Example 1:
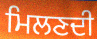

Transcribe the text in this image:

ਮਿਲਣਦੀ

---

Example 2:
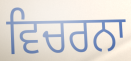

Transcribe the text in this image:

ਵਿਚਰਨਾ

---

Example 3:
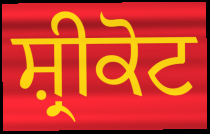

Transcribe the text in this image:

ਸ਼੍ਰੀਕੋਟ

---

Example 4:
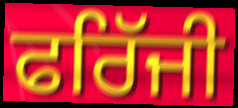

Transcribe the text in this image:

ਫਰਿੱਜੀ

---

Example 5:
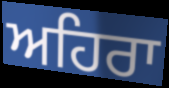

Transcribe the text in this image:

ਅਹਿਰਾ